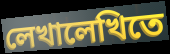
লেখালেখিতে